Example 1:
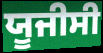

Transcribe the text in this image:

ਯੂਜੀਸੀ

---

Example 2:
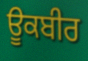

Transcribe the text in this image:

ਊਕਬੀਰ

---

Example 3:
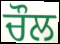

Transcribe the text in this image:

ਚੌਲ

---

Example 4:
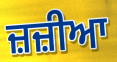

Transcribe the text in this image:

ਜ਼ਜ਼ੀਆ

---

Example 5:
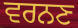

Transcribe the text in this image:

ਵਰਨਣ